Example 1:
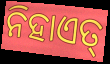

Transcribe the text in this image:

ନିହାଏତ୍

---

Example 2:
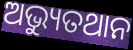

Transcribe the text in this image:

ଅଭ୍ୟୁତଥାନ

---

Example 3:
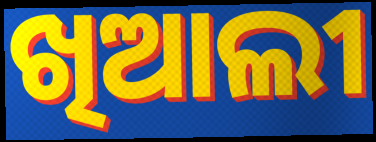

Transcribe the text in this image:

ଖିଆଲୀ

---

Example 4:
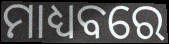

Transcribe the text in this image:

ମାଧ୍ୟବରେ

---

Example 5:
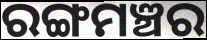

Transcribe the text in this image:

ରଙ୍ଗମଞ୍ଚର